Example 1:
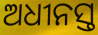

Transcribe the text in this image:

ଅଧୀନସ୍ତ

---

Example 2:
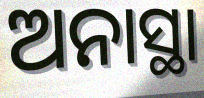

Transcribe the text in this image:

ଅନାସ୍ଥା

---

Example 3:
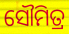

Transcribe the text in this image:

ସୌମିତ୍ର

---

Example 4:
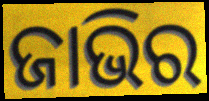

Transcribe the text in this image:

ଜାଭିର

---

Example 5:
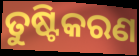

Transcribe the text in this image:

ତୁଷ୍ଟିକରଣ